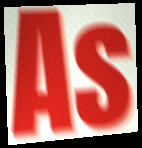
As